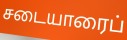
சடையாரைப்